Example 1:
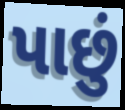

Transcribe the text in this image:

પાછું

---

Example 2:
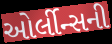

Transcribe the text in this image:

ઓર્લીન્સની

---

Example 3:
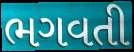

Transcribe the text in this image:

ભગવતી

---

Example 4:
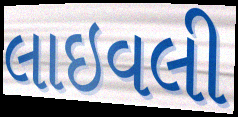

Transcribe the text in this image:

લાઇવલી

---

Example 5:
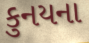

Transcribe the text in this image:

કુનયના